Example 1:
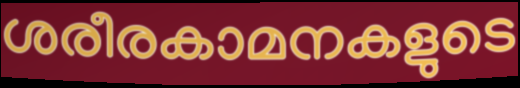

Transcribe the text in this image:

ശരീരകാമനകളുടെ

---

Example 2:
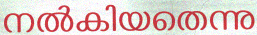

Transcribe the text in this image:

നൽകിയതെന്നു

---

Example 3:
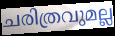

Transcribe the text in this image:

ചരിത്രവുമല്ല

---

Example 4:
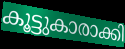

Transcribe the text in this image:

കൂട്ടുകാരാക്കി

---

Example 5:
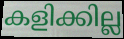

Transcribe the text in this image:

കളിക്കില്ല